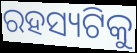
ରହସ୍ୟଟିକୁ